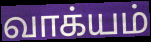
வாக்யம்